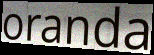
oranda